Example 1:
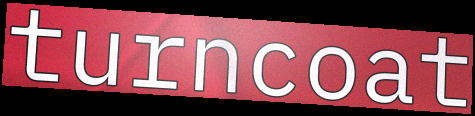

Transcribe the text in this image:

turncoat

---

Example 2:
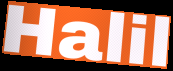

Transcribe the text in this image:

Halil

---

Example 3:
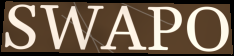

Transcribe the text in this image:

SWAPO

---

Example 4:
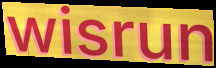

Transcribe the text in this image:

wisrun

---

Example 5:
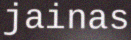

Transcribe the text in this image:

jainas